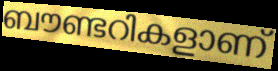
ബൗണ്ടറികളാണ്